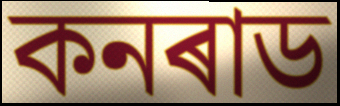
কনৰাড